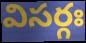
విసర్గః